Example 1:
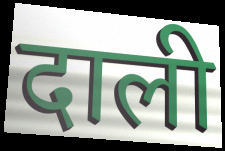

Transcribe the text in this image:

दाली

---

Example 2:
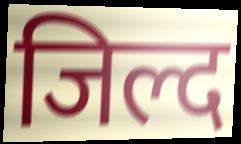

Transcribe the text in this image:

जिल्द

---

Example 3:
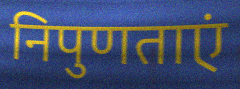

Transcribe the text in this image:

निपुणताएं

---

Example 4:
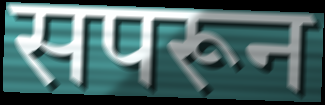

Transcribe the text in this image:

सपरून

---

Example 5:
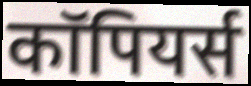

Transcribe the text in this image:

कॉपियर्स